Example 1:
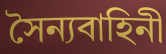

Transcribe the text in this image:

সৈন্যবাহিনী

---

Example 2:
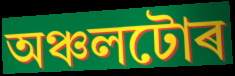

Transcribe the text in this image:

অঞ্চলটোৰ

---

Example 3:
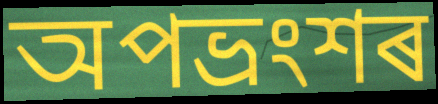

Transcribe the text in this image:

অপভ্ৰংশৰ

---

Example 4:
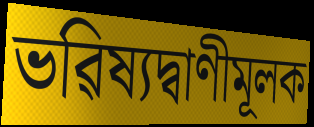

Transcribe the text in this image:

ভৱিষ্যদ্বাণীমূলক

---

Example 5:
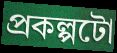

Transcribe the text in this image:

প্ৰকল্পটো